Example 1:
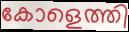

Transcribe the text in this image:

കോളെത്തി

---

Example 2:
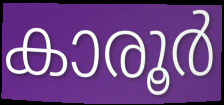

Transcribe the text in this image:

കാരൂർ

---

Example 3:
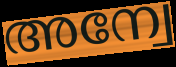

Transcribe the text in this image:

അന്വേ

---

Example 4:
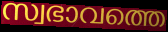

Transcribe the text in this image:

സ്വഭാവത്തെ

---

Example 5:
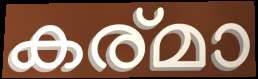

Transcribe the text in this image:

കര്മാ